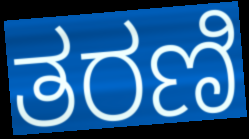
ತರಣಿ